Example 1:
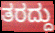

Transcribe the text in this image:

ತರದ್ದು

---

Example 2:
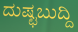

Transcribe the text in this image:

ದುಷ್ಟಬುದ್ದಿ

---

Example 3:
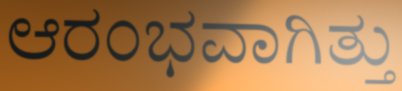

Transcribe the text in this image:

ಆರಂಭವಾಗಿತ್ತು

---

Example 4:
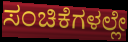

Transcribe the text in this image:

ಸಂಚಿಕೆಗಳಲ್ಲೇ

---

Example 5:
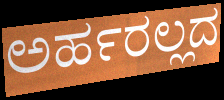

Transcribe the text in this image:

ಅರ್ಹರಲ್ಲದ